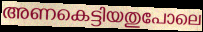
അണകെട്ടിയതുപോലെ